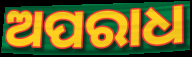
ଅପରାଧ